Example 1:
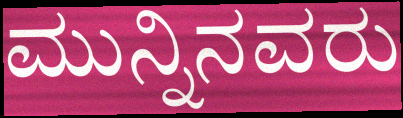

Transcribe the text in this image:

ಮುನ್ನಿನವರು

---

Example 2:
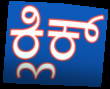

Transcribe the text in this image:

ಕ್ಲಿಕ್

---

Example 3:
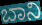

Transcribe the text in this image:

ಬಾನಿ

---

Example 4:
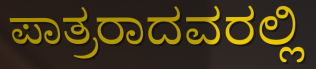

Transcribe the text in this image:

ಪಾತ್ರರಾದವರಲ್ಲಿ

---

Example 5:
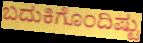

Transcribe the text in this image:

ಬದುಕಿಗೊಂದಿಷ್ಟು